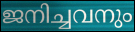
ജനിച്ചവനും